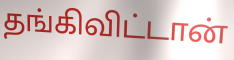
தங்கிவிட்டான்